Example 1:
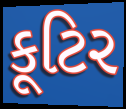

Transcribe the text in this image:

કૂટિર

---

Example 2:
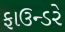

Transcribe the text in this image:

ફાઉન્ડરે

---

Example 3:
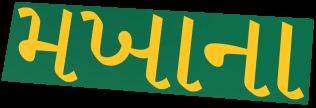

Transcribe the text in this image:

મખાના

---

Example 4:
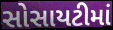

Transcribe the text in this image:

સોસાયટીમાં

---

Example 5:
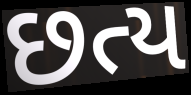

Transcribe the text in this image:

છત્ય